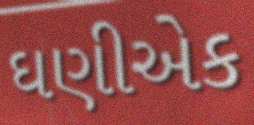
ઘણીએક